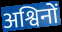
अश्विनों